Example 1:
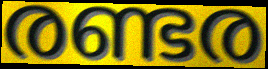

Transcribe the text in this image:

രണ്ടര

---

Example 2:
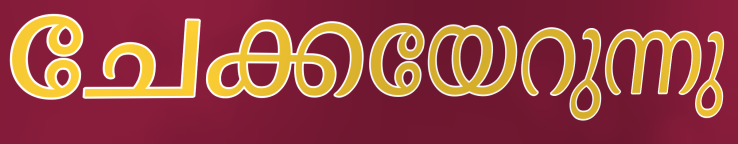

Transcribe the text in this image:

ചേക്കയേറുന്നു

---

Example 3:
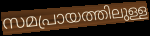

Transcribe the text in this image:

സമപ്രായത്തിലുള്ള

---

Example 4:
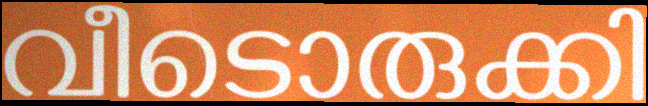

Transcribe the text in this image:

വീടൊരുക്കി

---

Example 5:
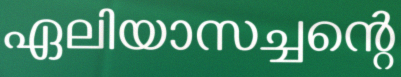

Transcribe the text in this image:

ഏലിയാസച്ചന്റെ